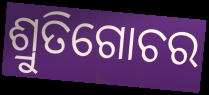
ଶ୍ରୁତିଗୋଚର